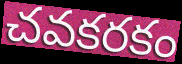
చవకరకం